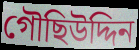
গৌছিউদ্দিন